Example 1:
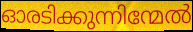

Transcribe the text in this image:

ഓരടിക്കുന്നിന്മേൽ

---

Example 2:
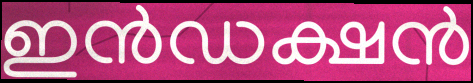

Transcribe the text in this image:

ഇൻഡക്ഷൻ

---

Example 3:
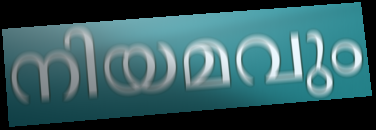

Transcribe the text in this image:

നിയമവും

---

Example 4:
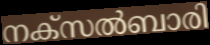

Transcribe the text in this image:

നക്സൽബാരി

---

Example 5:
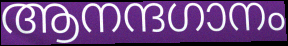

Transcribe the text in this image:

ആനന്ദഗാനം